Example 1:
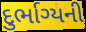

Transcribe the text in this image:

દુર્ભાગ્યની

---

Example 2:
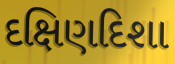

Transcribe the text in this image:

દક્ષિણદિશા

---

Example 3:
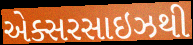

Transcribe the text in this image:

એક્સરસાઇઝથી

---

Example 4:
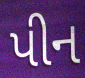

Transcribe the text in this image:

પીન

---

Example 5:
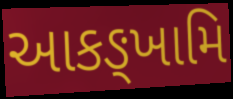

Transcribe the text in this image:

આકઙ્ખામિ